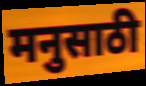
मनुसाठी